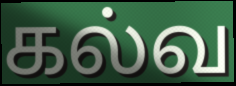
கல்வ